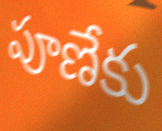
పూణేకు